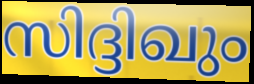
സിദ്ദിഖും